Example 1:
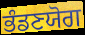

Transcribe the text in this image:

ਭੰਡਣਯੋਗ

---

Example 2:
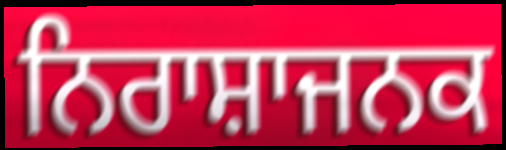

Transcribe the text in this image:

ਨਿਰਾਸ਼ਾਜਨਕ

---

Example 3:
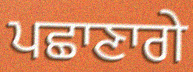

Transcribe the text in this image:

ਪਛਾਣਾਗੇ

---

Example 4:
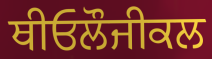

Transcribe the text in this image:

ਥੀਓਲੌਜੀਕਲ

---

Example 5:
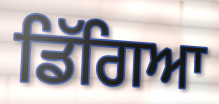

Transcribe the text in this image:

ਡਿੱਗਿਆ